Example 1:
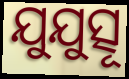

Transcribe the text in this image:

ଯୁଯୁତ୍ସୂ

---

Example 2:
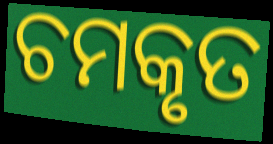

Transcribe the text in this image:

ଚମକୃତ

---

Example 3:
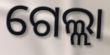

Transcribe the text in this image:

ଗେଲ୍ଲା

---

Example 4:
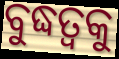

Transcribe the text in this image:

ବୁଦ୍ଧତ୍ଵକୁ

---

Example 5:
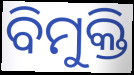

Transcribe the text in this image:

ବିମୁକ୍ତି